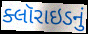
ક્લૉરાઇડનું